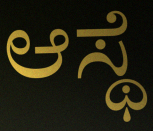
ಆಸ್ಥೆ